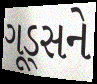
ગૂડ્સને